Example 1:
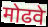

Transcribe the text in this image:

मोढवे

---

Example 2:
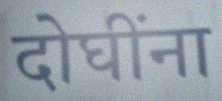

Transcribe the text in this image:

दोघींना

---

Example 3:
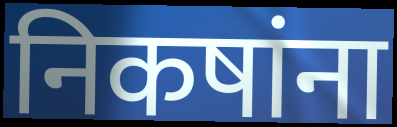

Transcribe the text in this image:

निकषांना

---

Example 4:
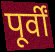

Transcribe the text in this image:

पूर्वीं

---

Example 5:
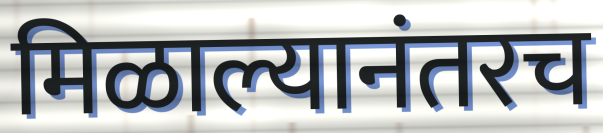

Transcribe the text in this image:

मिळाल्यानंतरच